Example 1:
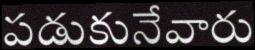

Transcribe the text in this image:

పడుకునేవారు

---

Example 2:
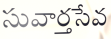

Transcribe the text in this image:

సువార్తసేవ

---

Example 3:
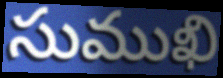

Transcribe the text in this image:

సుముఖి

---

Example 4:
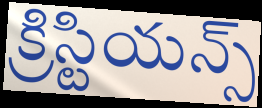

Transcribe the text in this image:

క్రిస్టియన్స్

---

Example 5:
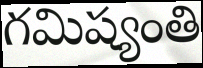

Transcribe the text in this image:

గమిష్యంతి